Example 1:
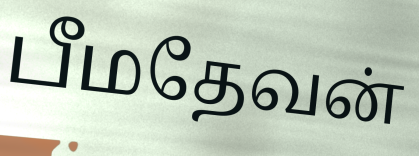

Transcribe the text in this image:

பீமதேவன்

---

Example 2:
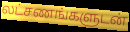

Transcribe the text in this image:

லட்சணங்களுடன்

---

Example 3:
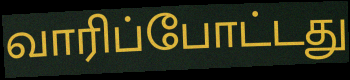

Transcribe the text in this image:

வாரிப்போட்டது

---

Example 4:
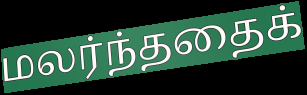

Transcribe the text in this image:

மலர்ந்ததைக்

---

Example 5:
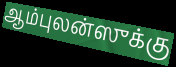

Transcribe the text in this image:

ஆம்புலன்ஸுக்கு